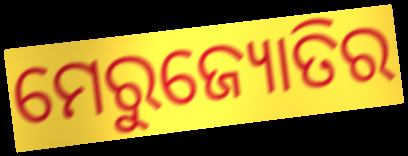
ମେରୁଜ୍ୟୋତିର